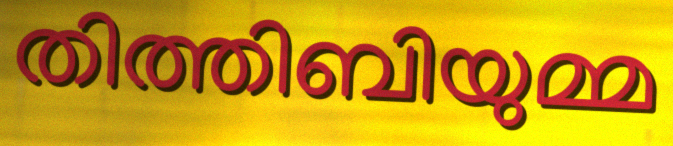
തിത്തിബിയുമ്മ